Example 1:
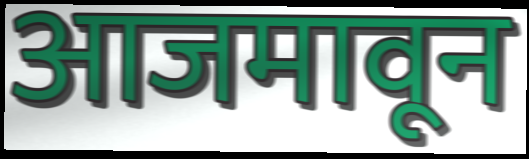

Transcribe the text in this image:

आजमावून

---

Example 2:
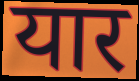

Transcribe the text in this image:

यार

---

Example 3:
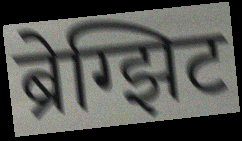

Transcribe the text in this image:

ब्रेग्झिट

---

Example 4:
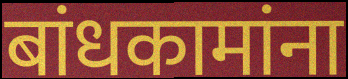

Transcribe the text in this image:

बांधकामांना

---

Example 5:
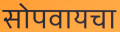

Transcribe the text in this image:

सोपवायचा